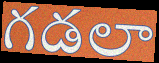
గడలా